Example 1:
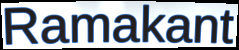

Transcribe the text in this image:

Ramakant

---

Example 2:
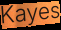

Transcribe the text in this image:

Kayes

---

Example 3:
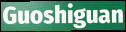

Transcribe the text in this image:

Guoshiguan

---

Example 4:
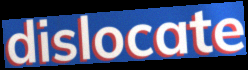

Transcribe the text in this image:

dislocate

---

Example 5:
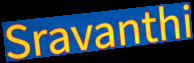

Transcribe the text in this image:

Sravanthi